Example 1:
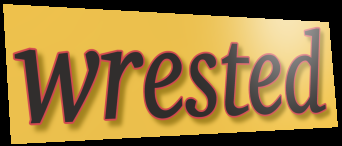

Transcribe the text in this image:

wrested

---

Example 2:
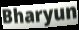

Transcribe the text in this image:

Bharyun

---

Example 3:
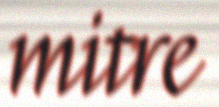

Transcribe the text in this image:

mitre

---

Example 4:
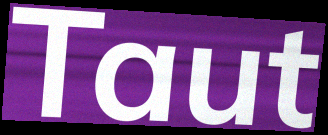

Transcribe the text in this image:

Taut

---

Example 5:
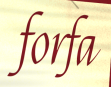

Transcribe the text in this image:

forfa